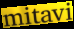
mitavi